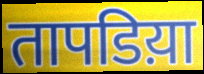
तापडिय़ा